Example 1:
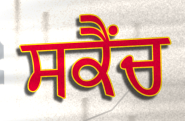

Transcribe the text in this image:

ਸਕੈਂਚ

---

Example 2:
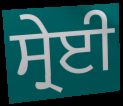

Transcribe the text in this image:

ਸ੍ਰੇਈ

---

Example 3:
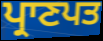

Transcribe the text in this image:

ਪ੍ਰਾਣਪਤ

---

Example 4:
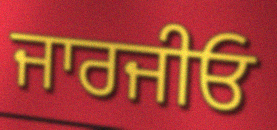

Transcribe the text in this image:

ਜਾਰਜੀਓ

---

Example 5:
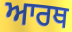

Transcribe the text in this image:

ਆਰਥ